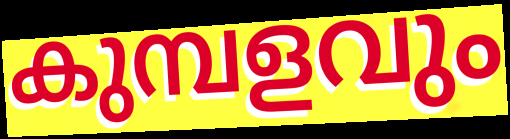
കുമ്പളവും